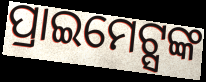
ପ୍ରାଇମେଟ୍ସଙ୍କ